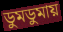
ডুমডুমায়